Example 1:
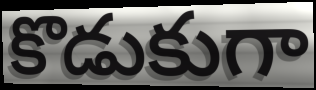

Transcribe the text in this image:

కొడుకుగా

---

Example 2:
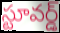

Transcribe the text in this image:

స్టూవర్డ్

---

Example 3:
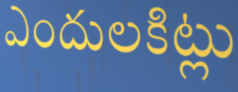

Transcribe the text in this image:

ఎందులకిట్లు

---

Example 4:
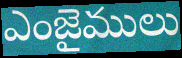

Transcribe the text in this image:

ఎంజైములు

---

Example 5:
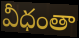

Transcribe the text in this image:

వీధంతా